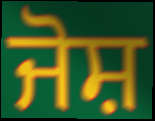
ਜੋਸ਼